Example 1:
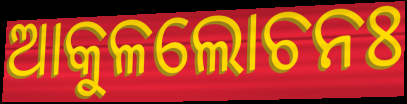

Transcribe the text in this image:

ଆକୁଳଲୋଚନଃ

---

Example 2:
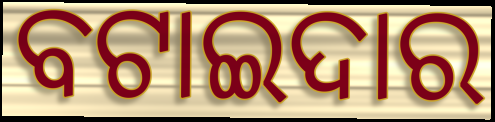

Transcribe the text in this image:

ବଟାଇଦାର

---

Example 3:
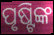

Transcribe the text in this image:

ପୃଷ୍ଟିଙ୍କ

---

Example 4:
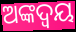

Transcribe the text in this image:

ଅଙ୍କଦ୍ବୟ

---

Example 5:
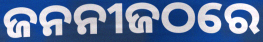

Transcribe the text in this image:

ଜନନୀଜଠରେ